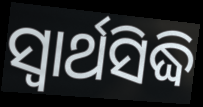
ସ୍ୱାର୍ଥସିଦ୍ଧି